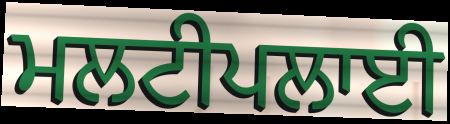
ਮਲਟੀਪਲਾਈ